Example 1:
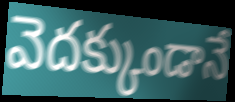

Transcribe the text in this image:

వెదక్కుండానే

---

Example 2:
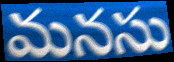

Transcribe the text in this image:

మనసు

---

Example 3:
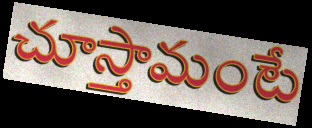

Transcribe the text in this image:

చూస్తామంటే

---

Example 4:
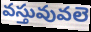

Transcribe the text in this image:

వస్తువువలె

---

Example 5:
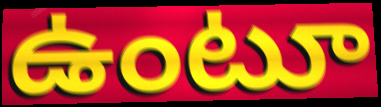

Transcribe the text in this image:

ఉంటూ